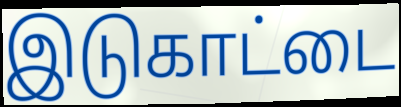
இடுகாட்டை